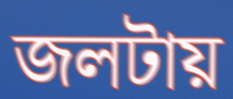
জলটায়